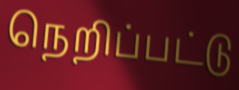
நெறிப்பட்டு